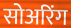
सोअरिंग